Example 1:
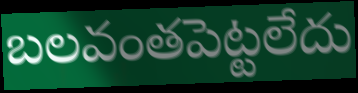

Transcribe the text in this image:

బలవంతపెట్టలేదు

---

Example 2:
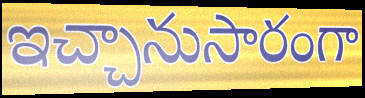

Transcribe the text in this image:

ఇచ్చానుసారంగా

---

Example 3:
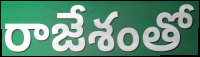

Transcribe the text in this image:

రాజేశంతో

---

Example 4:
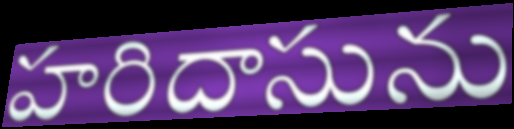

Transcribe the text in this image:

హరిదాసును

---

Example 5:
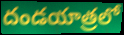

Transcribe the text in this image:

దండయాత్రలో